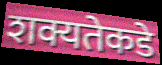
शक्यतेकडे